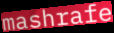
mashrafe